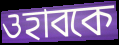
ওহাবকে